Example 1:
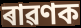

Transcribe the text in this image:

ৰাৱণক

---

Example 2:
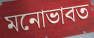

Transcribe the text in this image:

মনোভাবত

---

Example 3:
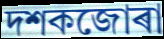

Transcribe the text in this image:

দশকজোৰা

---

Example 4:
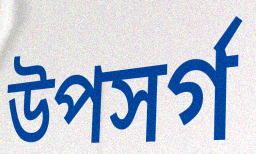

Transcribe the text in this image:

উপসৰ্গ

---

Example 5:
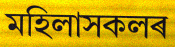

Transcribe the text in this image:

মহিলাসকলৰ